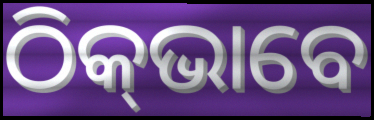
ଠିକ୍‍ଭାବେ